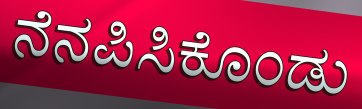
ನೆನಪಿಸಿಕೊಂಡು